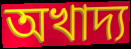
অখাদ্য